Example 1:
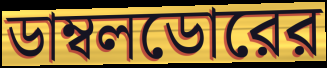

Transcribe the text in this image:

ডাম্বলডোরের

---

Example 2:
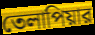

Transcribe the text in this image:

তেলাপিয়ার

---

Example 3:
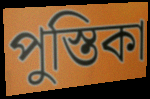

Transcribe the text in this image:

পুস্তিকা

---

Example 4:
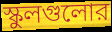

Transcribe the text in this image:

স্কুলগুলোর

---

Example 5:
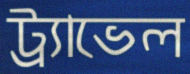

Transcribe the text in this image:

ট্র্যাভেল